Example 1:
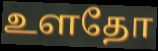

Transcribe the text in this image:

உளதோ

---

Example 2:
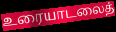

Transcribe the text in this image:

உரையாடலைத்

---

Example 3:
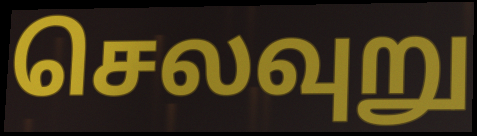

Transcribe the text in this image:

செலவுறு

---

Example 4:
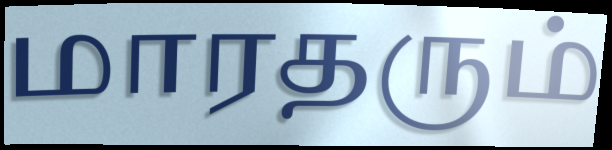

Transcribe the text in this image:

மாரதரும்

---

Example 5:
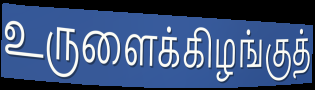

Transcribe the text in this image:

உருளைக்கிழங்குத்